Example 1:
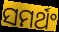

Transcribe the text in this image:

ସମର୍ଥଂ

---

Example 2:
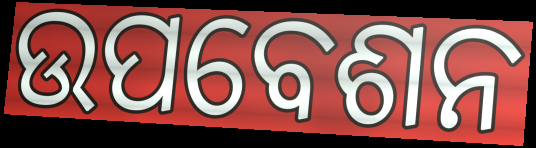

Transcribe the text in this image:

ଉପବେଶନ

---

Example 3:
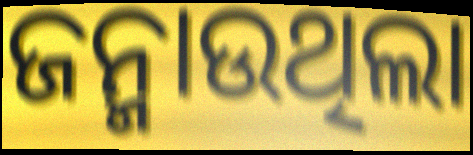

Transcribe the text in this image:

ଜନ୍ମାଉଥିଲା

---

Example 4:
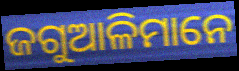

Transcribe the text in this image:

ଜଗୁଆଳିମାନେ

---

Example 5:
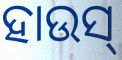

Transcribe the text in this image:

ହାଉସ୍